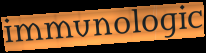
immunologic